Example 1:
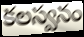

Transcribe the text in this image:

కలస్వనం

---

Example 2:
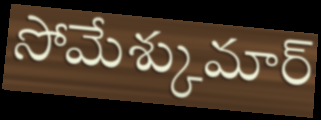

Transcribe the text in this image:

సోమేశ్కుమార్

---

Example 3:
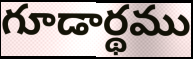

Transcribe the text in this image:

గూడార్థము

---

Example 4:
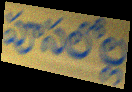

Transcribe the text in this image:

పూసలోల్ల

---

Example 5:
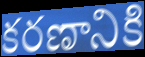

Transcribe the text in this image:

కరణానికి